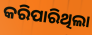
କରିପାରିଥିଲା